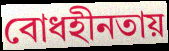
বোধহীনতায়